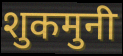
शुकमुनी